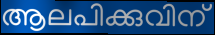
ആലപിക്കുവിന്